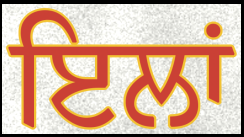
ਇਲਾਂ